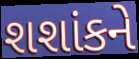
શશાંકને